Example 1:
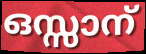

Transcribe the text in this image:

ഒസ്സാന്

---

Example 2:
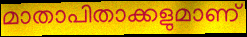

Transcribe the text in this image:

മാതാപിതാക്കളുമാണ്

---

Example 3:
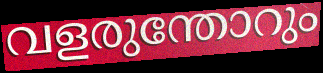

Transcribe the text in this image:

വളരുന്തോറും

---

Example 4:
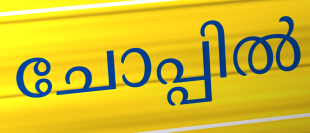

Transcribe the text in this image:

ചോപ്പിൽ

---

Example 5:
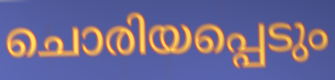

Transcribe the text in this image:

ചൊരിയപ്പെടും